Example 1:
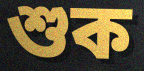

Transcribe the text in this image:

শুক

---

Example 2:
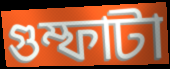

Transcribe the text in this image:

গুম্ফাটা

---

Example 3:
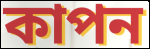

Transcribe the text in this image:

কাপন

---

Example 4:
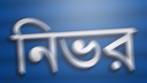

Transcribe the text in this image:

নিভর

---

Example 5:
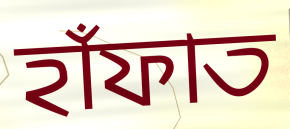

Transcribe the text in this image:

হাঁফাত